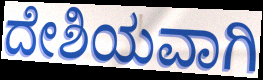
ದೇಶಿಯವಾಗಿ